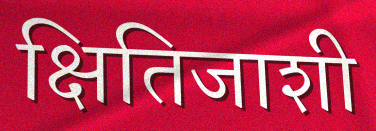
क्षितिजाशी